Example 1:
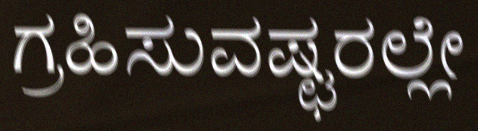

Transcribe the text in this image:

ಗ್ರಹಿಸುವಷ್ಟರಲ್ಲೇ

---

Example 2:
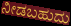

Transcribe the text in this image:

ನೀಡಬಹುದು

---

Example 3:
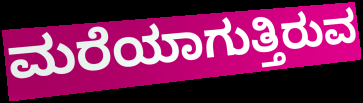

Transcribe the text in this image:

ಮರೆಯಾಗುತ್ತಿರುವ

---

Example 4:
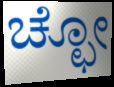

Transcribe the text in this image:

ಚ್ಛೋ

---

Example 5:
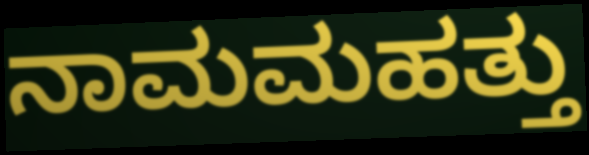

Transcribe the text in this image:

ನಾಮಮಹತ್ತು